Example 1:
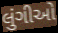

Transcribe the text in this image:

લુંગીઓ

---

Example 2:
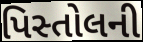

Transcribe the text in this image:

પિસ્તોલની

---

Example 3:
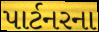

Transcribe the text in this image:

પાર્ટનરના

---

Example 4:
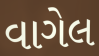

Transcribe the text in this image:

વાગેલ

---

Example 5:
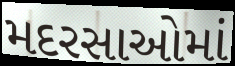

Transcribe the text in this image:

મદરસાઓમાં